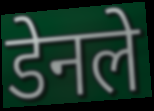
डेनले